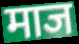
माज